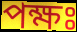
পক্ষঃ